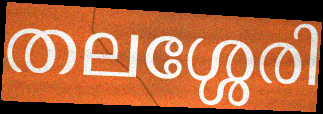
തലശ്ശേരി